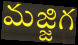
మజ్జిగ